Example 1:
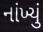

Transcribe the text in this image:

નાંખ્યું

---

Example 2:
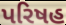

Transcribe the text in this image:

પરિષહ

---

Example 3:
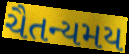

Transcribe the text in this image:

ચૈતન્યમય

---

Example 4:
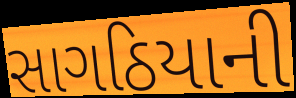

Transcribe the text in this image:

સાગઠિયાની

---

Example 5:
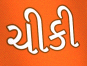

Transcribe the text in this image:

ચીકી